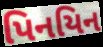
પિનયિન